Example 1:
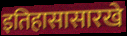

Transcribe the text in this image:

इतिहासासारखे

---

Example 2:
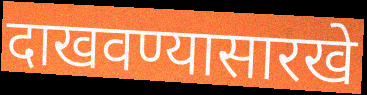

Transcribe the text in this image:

दाखवण्यासारखे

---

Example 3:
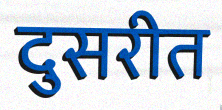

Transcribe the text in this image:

दुसरीत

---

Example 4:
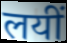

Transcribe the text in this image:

लयीं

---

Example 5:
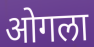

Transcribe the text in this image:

ओगला